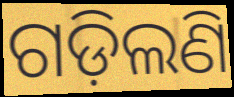
ଗଡ଼ିଲଣି